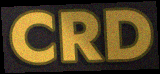
CRD